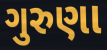
ગુરુણા